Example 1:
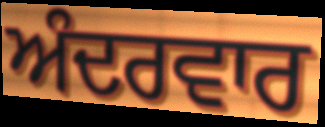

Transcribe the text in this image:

ਅੰਦਰਵਾਰ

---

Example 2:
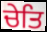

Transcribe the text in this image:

ਚੇਤਿ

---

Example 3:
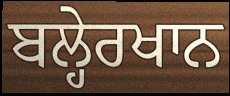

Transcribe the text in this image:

ਬਲ੍ਹੇਰਖਾਨ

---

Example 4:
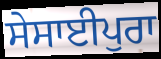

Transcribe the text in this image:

ਸੇਸਾਈਪੁਰਾ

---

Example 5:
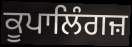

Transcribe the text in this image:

ਕੂਪਾਲਿੰਗਜ਼